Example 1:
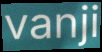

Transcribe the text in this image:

vanji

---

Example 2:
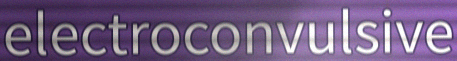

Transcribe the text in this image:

electroconvulsive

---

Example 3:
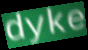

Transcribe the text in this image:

dyke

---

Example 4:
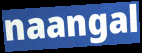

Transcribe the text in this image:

naangal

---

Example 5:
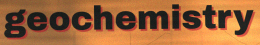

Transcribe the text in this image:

geochemistry